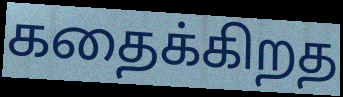
கதைக்கிறத